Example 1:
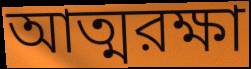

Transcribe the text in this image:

আত্মরক্ষা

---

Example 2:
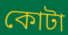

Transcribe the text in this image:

কোটা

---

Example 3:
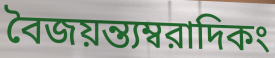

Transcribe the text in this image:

বৈজয়ন্ত্যম্বরাদিকং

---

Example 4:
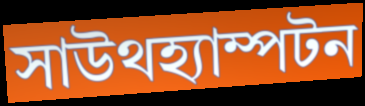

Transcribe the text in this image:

সাউথহ্যাম্পটন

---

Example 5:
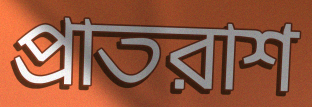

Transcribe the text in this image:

প্রাতরাশ